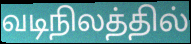
வடிநிலத்தில்